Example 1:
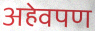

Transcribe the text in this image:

अहेवपण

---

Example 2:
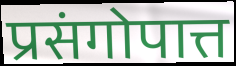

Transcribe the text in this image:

प्रसंगोपात्त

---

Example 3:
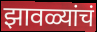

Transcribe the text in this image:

झावळ्यांचं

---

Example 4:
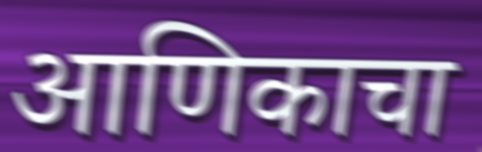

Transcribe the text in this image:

आणिकाचा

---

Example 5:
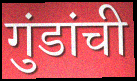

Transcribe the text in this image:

गुंडांची